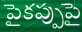
పైకప్పుపై